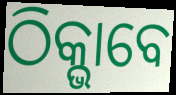
ଠିକ୍ଭାବେ